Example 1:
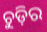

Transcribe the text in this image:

ଚୁଡ଼ିର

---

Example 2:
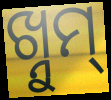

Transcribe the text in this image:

ଖ୍ନୁମ୍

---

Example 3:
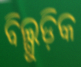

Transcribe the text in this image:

ବିଲ୍ଗୁଡ଼ିକ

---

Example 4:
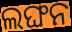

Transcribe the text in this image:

ଲଙ୍ଘନ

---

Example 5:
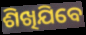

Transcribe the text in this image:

ଶିଖିଯିବେ